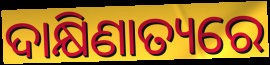
ଦାକ୍ଷିଣାତ୍ୟରେ